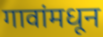
गावांमधून